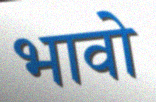
भावो